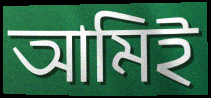
আমিই